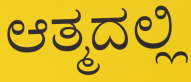
ಆತ್ಮದಲ್ಲಿ